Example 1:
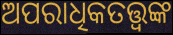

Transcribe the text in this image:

ଅପରାଧିକତତ୍ତ୍ୱଙ୍କ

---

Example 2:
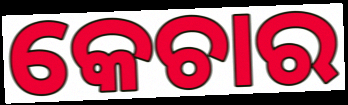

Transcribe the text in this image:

କେଚାର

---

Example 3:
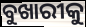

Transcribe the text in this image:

ବୁଖାରୀକୁ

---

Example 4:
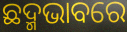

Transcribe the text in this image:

ଛଦ୍ମଭାବରେ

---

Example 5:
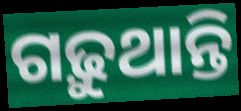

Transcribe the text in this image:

ଗଢ଼ୁଥାନ୍ତି